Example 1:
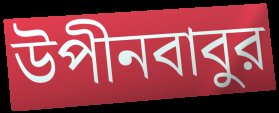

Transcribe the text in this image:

উপীনবাবুর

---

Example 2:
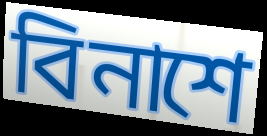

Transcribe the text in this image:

বিনাশে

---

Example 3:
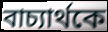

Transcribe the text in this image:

বাচ্যার্থকে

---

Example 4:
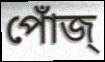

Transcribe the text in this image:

পোঁজ্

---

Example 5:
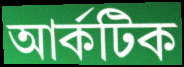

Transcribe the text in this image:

আর্কটিক